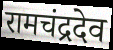
रामचंद्रदेव